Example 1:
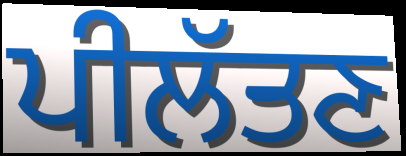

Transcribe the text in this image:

ਪੀਲੱਤਣ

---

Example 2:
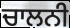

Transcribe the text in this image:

ਚਾਲਨੀ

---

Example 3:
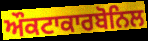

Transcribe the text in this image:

ਔਕਟਾਕਾਰਬੋਨਿਲ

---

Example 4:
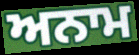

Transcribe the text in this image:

ਅਨਾਮ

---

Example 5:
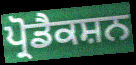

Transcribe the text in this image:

ਪ੍ਰੋਡੈਕਸ਼ਨ